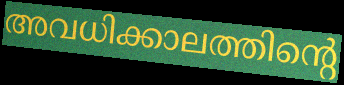
അവധിക്കാലത്തിന്റെ